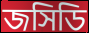
জসিডি